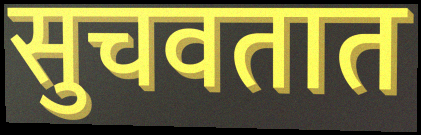
सुचवतात